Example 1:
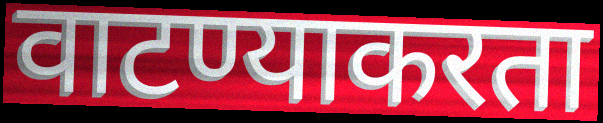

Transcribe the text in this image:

वाटण्याकरता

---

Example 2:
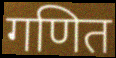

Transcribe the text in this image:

गणित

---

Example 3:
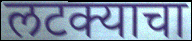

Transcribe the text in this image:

लटक्याचा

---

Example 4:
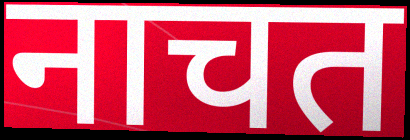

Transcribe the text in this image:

नाचत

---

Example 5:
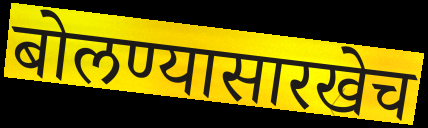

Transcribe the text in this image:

बोलण्यासारखेच